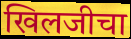
खिलजीचा